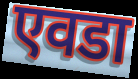
एवडा